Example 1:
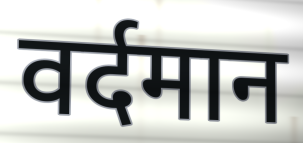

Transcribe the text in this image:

वर्दमान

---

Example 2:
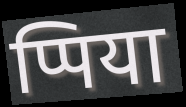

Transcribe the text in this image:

प्पिया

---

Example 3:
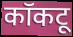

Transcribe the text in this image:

कॉकटू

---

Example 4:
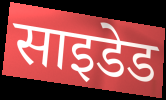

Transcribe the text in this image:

साइडेड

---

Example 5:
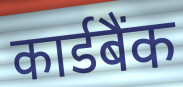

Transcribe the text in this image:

कार्डबैंक